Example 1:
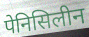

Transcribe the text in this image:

पेनिसिलीन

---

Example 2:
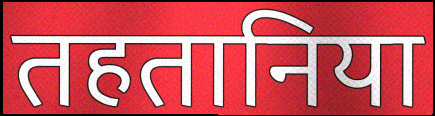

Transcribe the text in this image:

तहतानिया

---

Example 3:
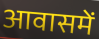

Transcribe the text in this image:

आवासमें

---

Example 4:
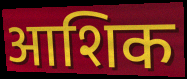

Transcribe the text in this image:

आशिक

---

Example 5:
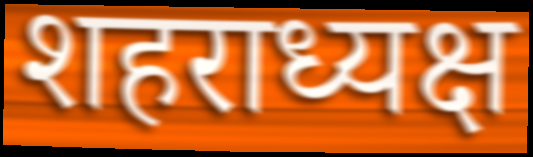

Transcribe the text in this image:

शहराध्यक्ष